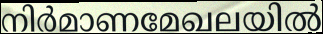
നിർമാണമേഖലയിൽ